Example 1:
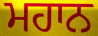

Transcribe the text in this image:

ਮਹਾਨ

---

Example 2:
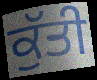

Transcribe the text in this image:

ਕੁੱਤੀ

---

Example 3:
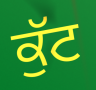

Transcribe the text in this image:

ਕੁੱਟ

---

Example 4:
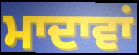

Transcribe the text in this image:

ਮਾਦਾਵਾਂ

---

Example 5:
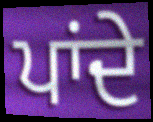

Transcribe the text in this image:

ਪਾਂਦੇ